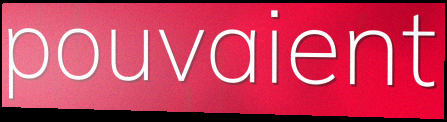
pouvaient